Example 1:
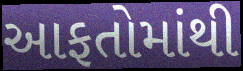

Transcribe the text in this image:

આફતોમાંથી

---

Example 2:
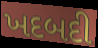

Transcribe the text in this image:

ખદબદી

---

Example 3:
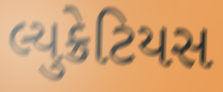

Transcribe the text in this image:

લ્યુક્રેટિયસ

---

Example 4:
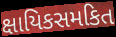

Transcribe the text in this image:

ક્ષાયિકસમકિત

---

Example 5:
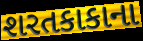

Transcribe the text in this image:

શરતકાકાના